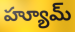
హ్యూమ్